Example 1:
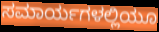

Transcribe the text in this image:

ಸಮಾರ್ಯಗಳಲ್ಲಿಯೂ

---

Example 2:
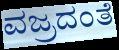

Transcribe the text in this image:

ವಜ್ರದಂತೆ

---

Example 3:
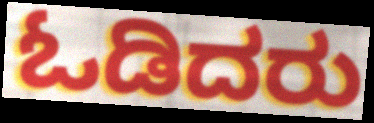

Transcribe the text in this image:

ಓಡಿದರು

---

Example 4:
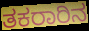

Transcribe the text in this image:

ತಕರಾರಿನ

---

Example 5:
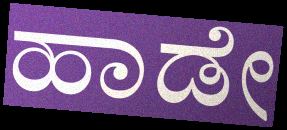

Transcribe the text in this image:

ಹಾಡೇ